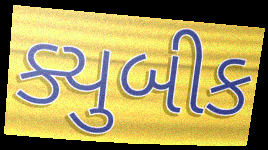
ક્યુબીક